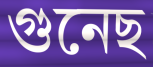
গুনেছ